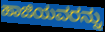
ಹಾಜಿಯವರನ್ನು